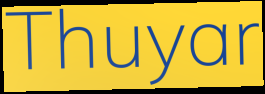
Thuyar